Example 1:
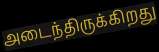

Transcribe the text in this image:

அடைந்திருக்கிறது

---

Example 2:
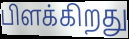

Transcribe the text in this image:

பிளக்கிறது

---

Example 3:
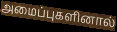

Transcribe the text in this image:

அமைப்புகளினால்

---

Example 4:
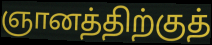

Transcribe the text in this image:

ஞானத்திற்குத்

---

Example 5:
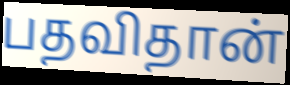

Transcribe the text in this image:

பதவிதான்